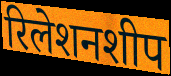
रिलेशनशीप